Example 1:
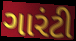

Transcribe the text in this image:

ગારંટી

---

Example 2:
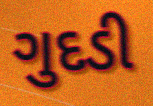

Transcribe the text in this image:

ગુદડી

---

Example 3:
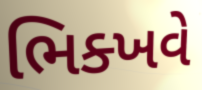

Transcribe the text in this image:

ભિક્ખવે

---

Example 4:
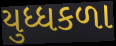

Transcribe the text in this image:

યુધ્ધકળા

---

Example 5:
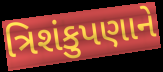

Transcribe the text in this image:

ત્રિશંકુપણાને